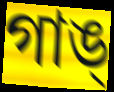
গাঙ্